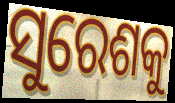
ସୁରେଶକୁ